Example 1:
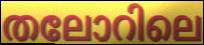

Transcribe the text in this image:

തലോറിലെ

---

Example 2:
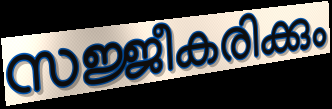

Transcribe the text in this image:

സജ്ജീകരിക്കും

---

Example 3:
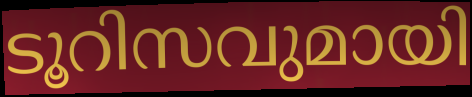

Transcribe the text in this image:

ടൂറിസവുമായി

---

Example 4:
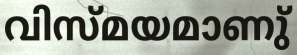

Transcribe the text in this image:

വിസ്മയമാണു്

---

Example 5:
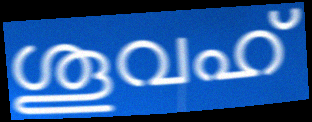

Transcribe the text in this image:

ശൂവഹ്